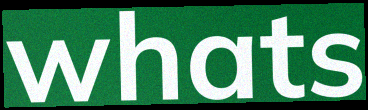
whats